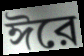
ঈরে